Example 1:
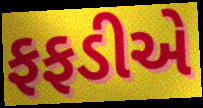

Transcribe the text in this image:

ફફડીએ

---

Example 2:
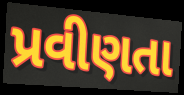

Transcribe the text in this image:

પ્રવીણતા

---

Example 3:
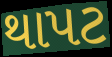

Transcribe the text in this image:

થાપટ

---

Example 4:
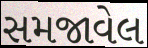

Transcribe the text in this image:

સમજાવેલ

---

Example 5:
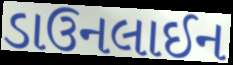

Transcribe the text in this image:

ડાઉનલાઈન